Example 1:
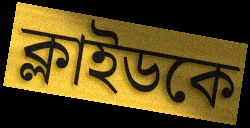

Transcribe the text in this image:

ক্লাইডকে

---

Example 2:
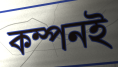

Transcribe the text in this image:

কম্পনই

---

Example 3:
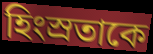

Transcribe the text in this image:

হিংস্রতাকে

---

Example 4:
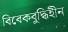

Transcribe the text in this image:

বিবেকবুদ্ধিহীন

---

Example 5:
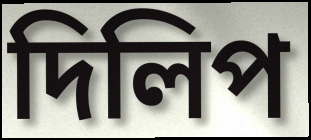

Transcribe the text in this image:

দিলিপ